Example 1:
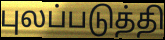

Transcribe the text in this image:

புலப்படுத்தி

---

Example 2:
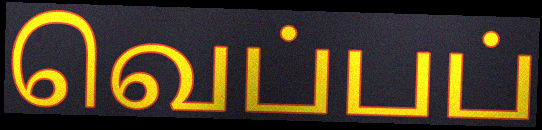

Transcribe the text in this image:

வெப்பப்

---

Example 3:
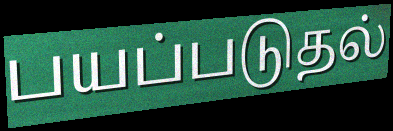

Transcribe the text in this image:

பயப்படுதல்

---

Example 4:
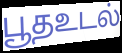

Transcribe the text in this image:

பூதஉடல்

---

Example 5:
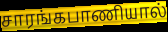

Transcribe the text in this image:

சாரங்கபாணியால்